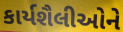
કાર્યશૈલીઓને